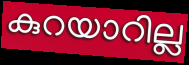
കുറയാറില്ല